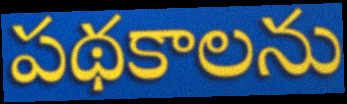
పథకాలను